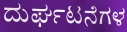
ದುರ್ಘಟನೆಗಳ